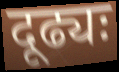
दूढ्यः